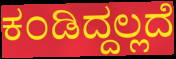
ಕಂಡಿದ್ದಲ್ಲದೆ